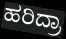
ಹರಿದ್ರಾ